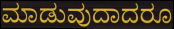
ಮಾಡುವುದಾದರೂ